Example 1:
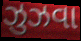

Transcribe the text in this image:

ઝુઝવા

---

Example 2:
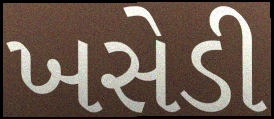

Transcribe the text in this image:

ખસેડી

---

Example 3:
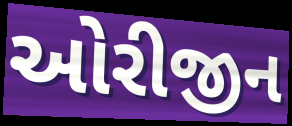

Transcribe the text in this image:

ઓરીજીન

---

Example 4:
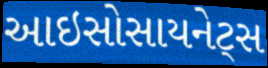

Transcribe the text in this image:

આઇસોસાયનેટ્સ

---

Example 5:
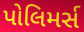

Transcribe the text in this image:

પોલિમર્સ